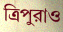
ত্রিপুরাও